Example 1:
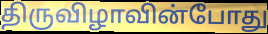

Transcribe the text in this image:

திருவிழாவின்போது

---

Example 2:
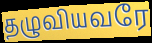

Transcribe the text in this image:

தழுவியவரே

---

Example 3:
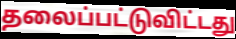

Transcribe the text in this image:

தலைப்பட்டுவிட்டது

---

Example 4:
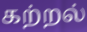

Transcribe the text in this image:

கற்றல்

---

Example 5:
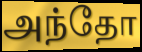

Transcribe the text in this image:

அந்தோ